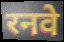
रनवे